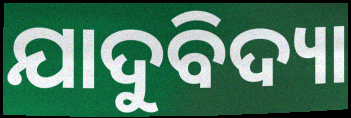
ଯାଦୁବିଦ୍ୟା